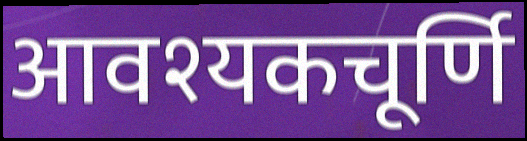
आवश्यकचूर्णि